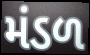
મંડળ